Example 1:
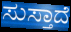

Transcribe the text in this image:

ಸುಸ್ತಾದೆ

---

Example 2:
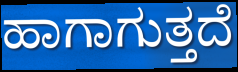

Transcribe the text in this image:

ಹಾಗಾಗುತ್ತದೆ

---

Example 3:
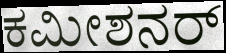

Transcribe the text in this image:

ಕಮೀಶನರ್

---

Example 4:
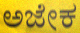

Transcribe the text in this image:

ಅಜೇಕ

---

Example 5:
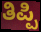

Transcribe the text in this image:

ತಿಪ್ಪಿ